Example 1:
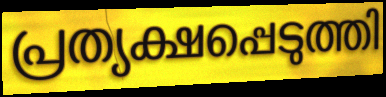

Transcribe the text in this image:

പ്രത്യക്ഷപ്പെടുത്തി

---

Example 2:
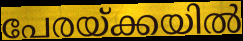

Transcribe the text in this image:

പേരയ്ക്കയിൽ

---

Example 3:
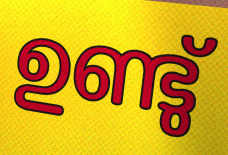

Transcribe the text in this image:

ഉണ്ടു്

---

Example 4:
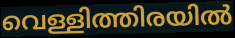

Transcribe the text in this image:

വെള്ളിത്തിരയിൽ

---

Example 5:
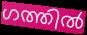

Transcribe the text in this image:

ഗത്തിൽ